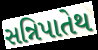
સન્નિપાતેથ